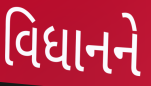
વિધાનને